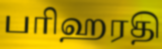
பரிஹரதி